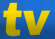
tv